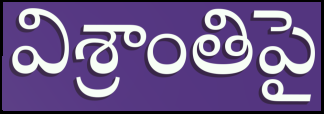
విశ్రాంతిపై